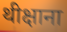
थीक्षाना